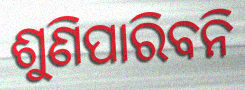
ଶୁଣିପାରିବନି